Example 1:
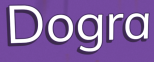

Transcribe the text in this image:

Dogra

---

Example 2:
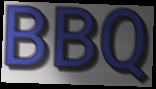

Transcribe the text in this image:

BBQ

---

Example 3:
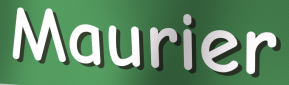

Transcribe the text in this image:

Maurier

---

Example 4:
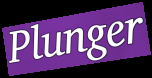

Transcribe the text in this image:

Plunger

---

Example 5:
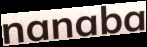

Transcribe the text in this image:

nanaba